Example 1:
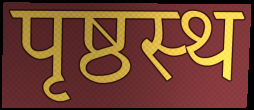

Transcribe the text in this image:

पृष्ठस्थ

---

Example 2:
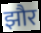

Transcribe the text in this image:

झौर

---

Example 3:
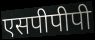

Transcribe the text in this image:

एसपीपीपी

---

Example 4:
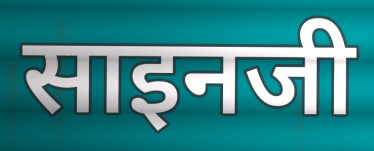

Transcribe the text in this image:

साइनजी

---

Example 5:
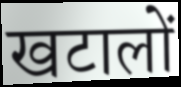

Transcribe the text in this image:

खटालों